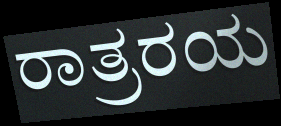
ರಾತ್ರರಯ